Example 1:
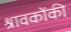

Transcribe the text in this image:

श्रावकोंकी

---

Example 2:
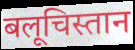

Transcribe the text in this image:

बलूचिस्तान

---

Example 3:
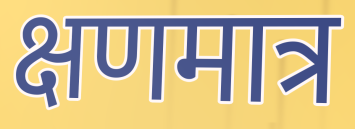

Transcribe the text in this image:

क्षणमात्र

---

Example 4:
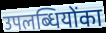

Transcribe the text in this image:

उपलब्धियोंका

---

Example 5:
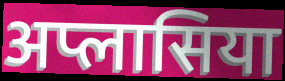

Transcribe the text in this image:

अप्लासिया